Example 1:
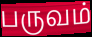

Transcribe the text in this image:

பருவம்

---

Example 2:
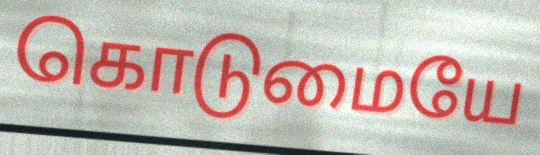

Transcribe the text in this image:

கொடுமையே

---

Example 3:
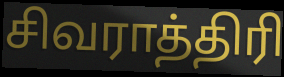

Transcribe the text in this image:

சிவராத்திரி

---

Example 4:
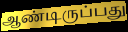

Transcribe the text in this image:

ஆண்டிருப்பது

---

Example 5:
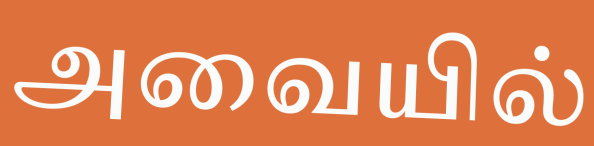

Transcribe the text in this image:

அவையில்